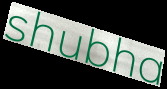
shubha